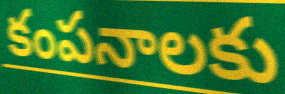
కంపనాలకు